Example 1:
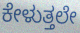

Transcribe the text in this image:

ಕೇಳುತ್ತಲೇ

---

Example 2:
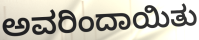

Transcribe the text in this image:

ಅವರಿಂದಾಯಿತು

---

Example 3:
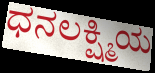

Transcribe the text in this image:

ಧನಲಕ್ಷ್ಮಿಯ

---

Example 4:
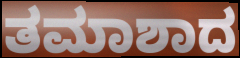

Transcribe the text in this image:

ತಮಾಶಾದ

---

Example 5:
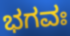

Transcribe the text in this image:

ಭಗವಃ